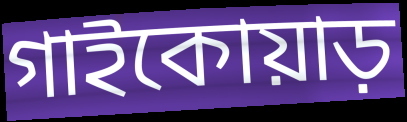
গাইকোয়াড়